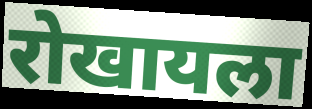
रोखायला